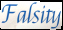
Falsity